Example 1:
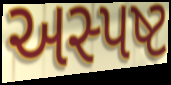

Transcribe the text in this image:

અસ્પષ્ટ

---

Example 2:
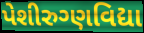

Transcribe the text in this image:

પેશીરુગ્ણવિદ્યા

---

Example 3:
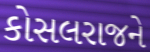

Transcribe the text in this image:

કોસલરાજને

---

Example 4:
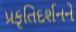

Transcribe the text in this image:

પ્રકૃતિદર્શનને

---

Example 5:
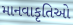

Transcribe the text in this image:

માનવાકૃતિઓ